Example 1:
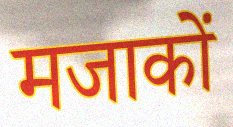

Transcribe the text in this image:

मजाकों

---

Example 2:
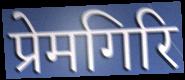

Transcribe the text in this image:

प्रेमगिरि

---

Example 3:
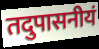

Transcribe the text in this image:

तदुपासनीयं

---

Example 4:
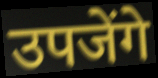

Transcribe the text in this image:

उपजेंगे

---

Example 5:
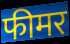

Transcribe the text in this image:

फीमर